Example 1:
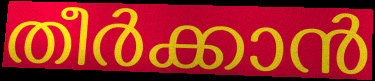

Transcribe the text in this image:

തീർക്കാൻ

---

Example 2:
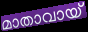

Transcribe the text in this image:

മാതാവായ്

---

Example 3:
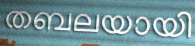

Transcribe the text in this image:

തബലയായി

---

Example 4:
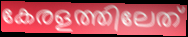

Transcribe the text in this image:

കേരളത്തിലേത്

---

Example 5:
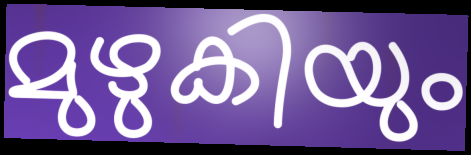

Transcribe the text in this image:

മുഴുകിയും